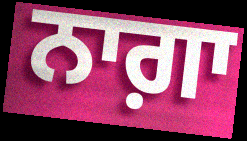
ਨਾਗ਼ਾ